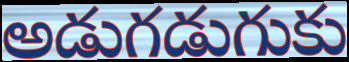
అడుగడుగుకు